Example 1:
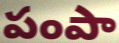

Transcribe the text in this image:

పంపా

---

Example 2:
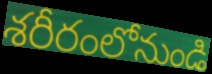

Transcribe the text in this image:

శరీరంలోనుండి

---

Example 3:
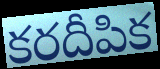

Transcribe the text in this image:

కరదీపిక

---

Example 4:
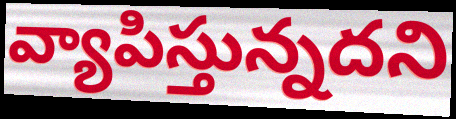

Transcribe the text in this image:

వ్యాపిస్తున్నదని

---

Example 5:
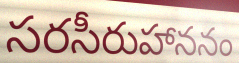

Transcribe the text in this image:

సరసీరుహాననం